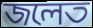
জলেত